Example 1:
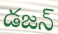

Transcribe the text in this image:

డజన్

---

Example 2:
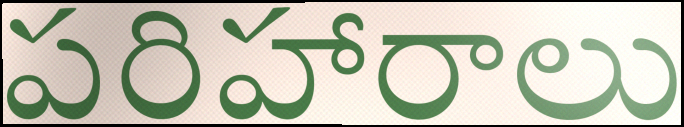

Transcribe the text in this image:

పరిహారాలు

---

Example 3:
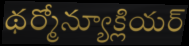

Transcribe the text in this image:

థర్మోన్యూక్లియర్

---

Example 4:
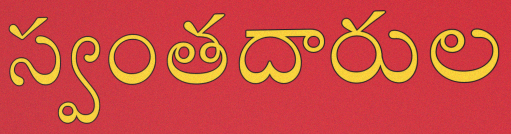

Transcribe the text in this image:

స్వంతదారుల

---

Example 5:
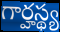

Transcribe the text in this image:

గార్హస్థ్య